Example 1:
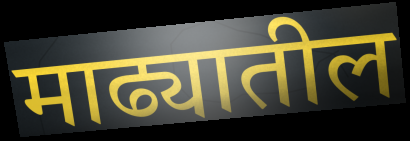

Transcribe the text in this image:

माढ्यातील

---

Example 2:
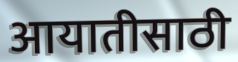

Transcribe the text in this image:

आयातीसाठी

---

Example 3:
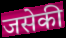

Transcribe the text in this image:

जसेकी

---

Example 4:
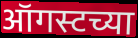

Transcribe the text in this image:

ऑगस्टच्या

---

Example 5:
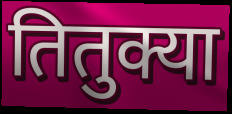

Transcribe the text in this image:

तितुक्या